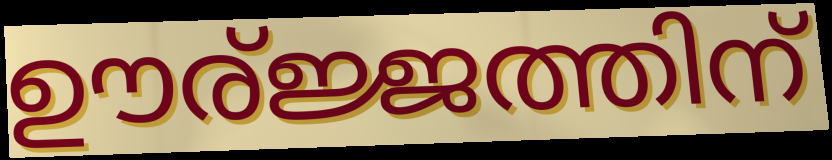
ഊര്ജ്ജത്തിന്